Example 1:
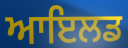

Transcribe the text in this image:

ਆਇਲਡ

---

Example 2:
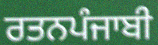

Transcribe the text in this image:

ਰਤਨਪੰਜਾਬੀ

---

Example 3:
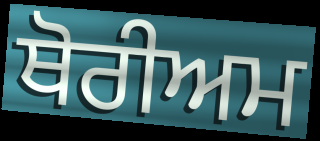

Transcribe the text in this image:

ਥੋਰੀਅਮ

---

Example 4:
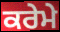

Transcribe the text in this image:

ਕਰੇਮੇ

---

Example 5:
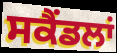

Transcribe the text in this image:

ਸਕੈਂਡਲਾਂ